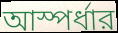
আস্পর্ধার